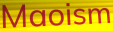
Maoism